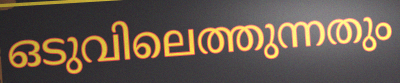
ഒടുവിലെത്തുന്നതും